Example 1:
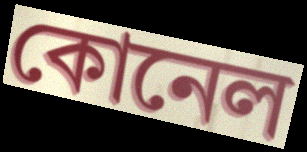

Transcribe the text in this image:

কোনেল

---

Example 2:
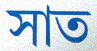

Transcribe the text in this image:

সাত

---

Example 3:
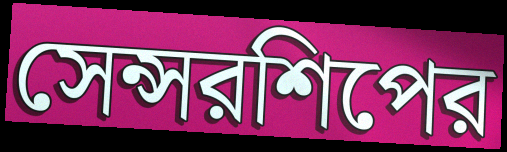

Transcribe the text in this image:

সেন্সরশিপের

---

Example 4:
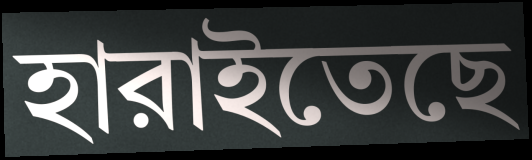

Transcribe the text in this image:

হারাইতেছে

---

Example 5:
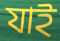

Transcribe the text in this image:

যাই